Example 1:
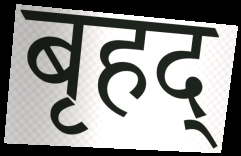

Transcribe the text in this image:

बृहद्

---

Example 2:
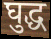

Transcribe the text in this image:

घुद्ध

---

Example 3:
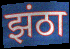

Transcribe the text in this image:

झंठा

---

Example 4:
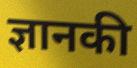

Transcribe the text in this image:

ज्ञानकी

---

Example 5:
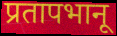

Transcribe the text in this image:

प्रतापभानू